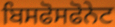
ਬਿਸਫੋਸਫੋਨੇਟ